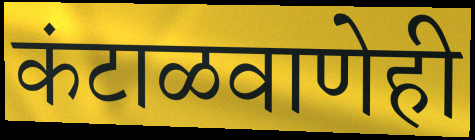
कंटाळवाणेही